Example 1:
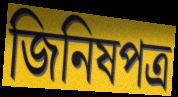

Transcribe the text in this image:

জিনিষপত্র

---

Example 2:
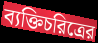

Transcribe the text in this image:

ব্যক্তিচরিত্রের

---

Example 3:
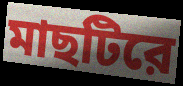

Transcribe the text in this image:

মাছটিরে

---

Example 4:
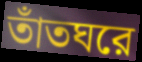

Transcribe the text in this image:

তাঁতঘরে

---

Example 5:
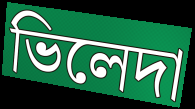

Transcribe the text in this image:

ভিলেদা